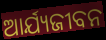
ଆର୍ଯ୍ୟଜୀବନ